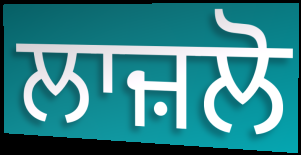
ਲਾਜ਼ਲੋ